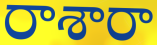
రాశారా